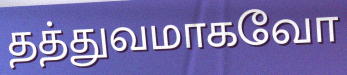
தத்துவமாகவோ